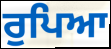
ਰੁਪਿਆ